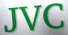
JVC